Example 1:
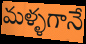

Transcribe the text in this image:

మళ్ళగానే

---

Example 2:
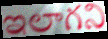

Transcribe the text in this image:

ఇలాగని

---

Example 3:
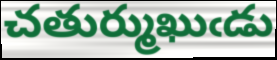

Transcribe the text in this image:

చతుర్ముఖుఁడు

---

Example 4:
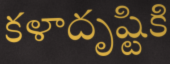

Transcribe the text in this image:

కళాదృష్టికి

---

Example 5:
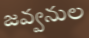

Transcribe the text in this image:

జవ్వనుల